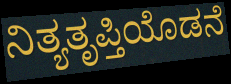
ನಿತ್ಯತೃಪ್ತಿಯೊಡನೆ